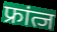
फ्रांत्ज